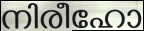
നിരീഹോ